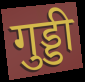
गुड्डी